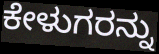
ಕೇಳುಗರನ್ನು